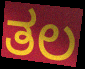
ತಲ